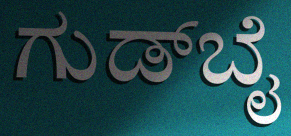
ಗುಡ್‌ಬೈ